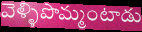
వెళ్ళిపొమ్మంటాడు